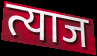
त्याज